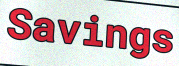
Savings